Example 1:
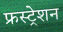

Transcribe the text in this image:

फ्रस्‍ट्रेशन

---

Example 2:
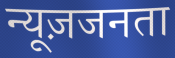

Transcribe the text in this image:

न्यूज़जनता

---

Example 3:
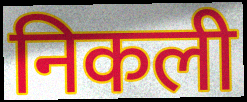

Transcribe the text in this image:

निकली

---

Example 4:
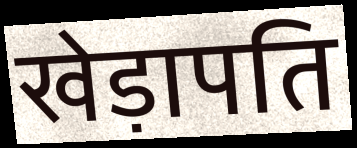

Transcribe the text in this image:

खेड़ापति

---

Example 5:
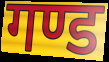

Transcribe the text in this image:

गण्ड